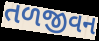
તળજીવન